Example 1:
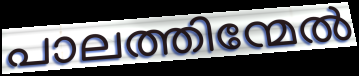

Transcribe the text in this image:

പാലത്തിന്മേൽ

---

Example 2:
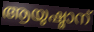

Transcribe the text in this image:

ആയുഷ്മാന്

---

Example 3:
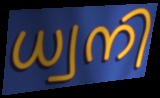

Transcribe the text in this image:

ധ്വനി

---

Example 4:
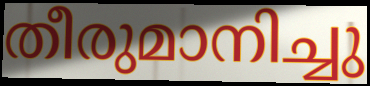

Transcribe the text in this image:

തീരുമാനിച്ചു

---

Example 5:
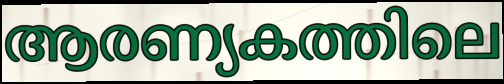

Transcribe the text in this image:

ആരണ്യകത്തിലെ